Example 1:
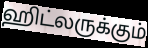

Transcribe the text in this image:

ஹிட்லருக்கும்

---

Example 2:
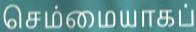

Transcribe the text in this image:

செம்மையாகப்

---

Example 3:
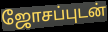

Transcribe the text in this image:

ஜோசப்புடன்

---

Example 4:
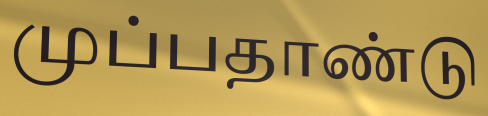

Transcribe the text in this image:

முப்பதாண்டு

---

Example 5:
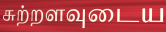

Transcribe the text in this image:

சுற்றளவுடைய